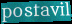
postavil